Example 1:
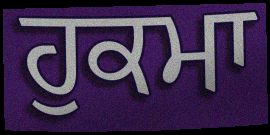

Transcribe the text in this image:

ਹੁਕਮਾ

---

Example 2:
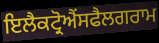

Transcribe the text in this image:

ਇਲੈਕਟ੍ਰੋਐਂਸਫੈਲਗਰਾਮ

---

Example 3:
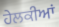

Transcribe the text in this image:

ਹੇਲਕੀਆਂ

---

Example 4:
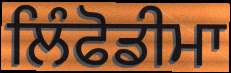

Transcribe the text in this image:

ਲਿੰਫੋਡੀਮਾ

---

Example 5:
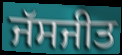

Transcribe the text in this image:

ਜੱਸਜੀਤ